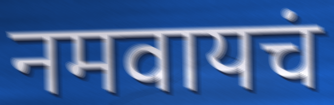
नमवायचं